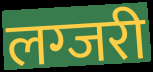
लग्‍जरी